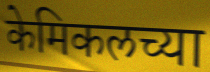
केमिकलच्या